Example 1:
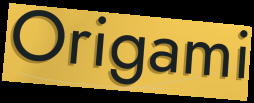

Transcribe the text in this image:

Origami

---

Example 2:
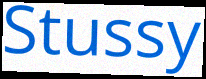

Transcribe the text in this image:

Stussy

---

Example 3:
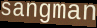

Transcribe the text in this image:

sangman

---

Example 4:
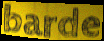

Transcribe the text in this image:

barde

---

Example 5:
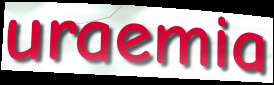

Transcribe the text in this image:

uraemia